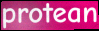
protean